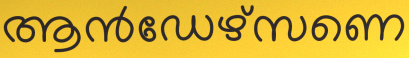
ആൻഡേഴ്സണെ